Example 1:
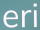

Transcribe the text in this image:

eri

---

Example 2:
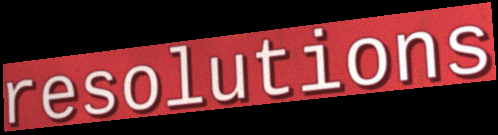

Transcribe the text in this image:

resolutions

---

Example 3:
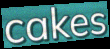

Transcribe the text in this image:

cakes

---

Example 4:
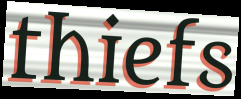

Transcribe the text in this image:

thiefs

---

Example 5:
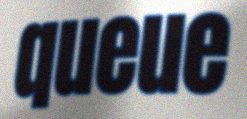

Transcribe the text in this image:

queue